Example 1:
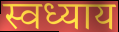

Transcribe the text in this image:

स्वध्याय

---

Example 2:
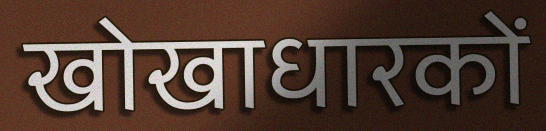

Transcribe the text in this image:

खोखाधारकों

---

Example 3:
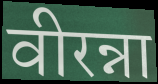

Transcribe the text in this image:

वीरन्ना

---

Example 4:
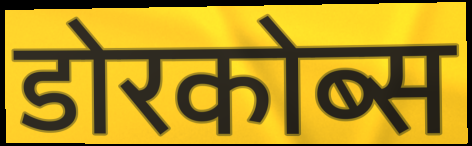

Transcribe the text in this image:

डोरकोब्स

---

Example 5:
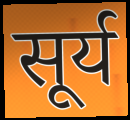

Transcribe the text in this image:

सूर्य